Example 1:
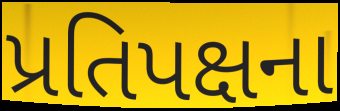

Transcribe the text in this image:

પ્રતિપક્ષના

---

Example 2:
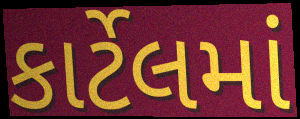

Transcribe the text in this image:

કાર્ટેલમાં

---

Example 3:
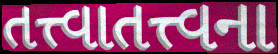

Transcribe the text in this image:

તત્ત્વાતત્ત્વના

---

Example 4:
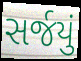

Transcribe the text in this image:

સર્જયું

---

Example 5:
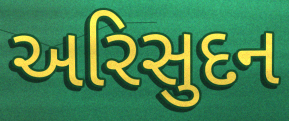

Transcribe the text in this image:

અરિસુદન